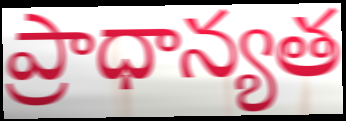
ప్రాధాన్యత